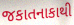
જકાતનાકાથી